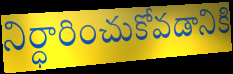
నిర్ధారించుకోవడానికి